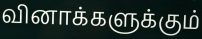
வினாக்களுக்கும்